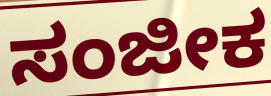
ಸಂಜೀಕ